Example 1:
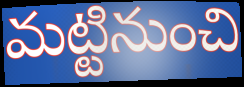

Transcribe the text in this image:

మట్టినుంచి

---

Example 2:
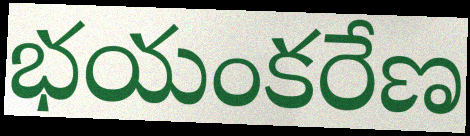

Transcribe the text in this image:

భయంకరేణ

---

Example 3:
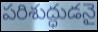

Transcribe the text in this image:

పరిశుద్ధుడనై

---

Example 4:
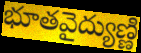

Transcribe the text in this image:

భూతవైద్యుణ్ణి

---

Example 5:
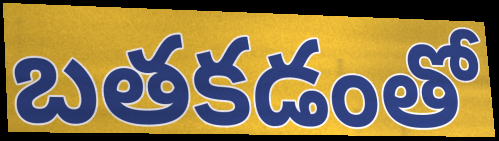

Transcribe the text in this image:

బతకడంతో